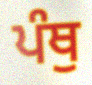
ਪੰਥੁ